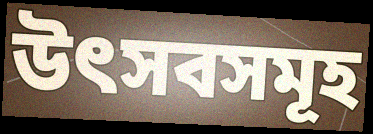
উৎসবসমূহ